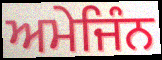
ਅਮੇਜਿੰਨ